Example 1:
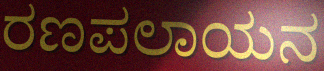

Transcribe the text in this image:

ರಣಪಲಾಯನ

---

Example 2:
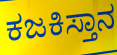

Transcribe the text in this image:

ಕಜಕಿಸ್ತಾನ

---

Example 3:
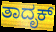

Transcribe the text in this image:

ತಾದೃಕ್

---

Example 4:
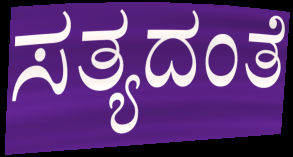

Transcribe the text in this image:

ಸತ್ಯದಂತೆ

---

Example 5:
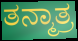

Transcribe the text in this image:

ತನ್ಮಾತ್ರ